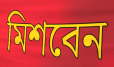
মিশবেন